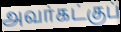
அவர்கட்குப்